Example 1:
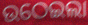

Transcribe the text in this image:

ଉଠେଇଲା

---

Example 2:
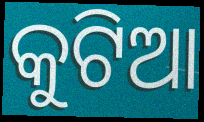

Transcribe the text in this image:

କୁଟିଆ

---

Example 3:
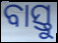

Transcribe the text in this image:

ବାସ୍ତୁ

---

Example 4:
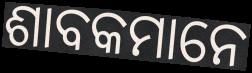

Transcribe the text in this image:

ଶାବକମାନେ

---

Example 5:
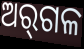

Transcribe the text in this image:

ଅର୍‌ଗଳ